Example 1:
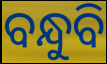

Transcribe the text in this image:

ବନ୍ଧୁବି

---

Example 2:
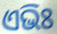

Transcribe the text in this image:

ଏଭିଃ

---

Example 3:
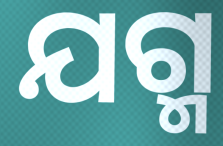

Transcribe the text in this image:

ଯଗ୍ମ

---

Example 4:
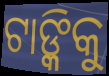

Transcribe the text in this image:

ଟାଙ୍କିକୁ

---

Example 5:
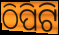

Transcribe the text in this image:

ଠିପିଟି